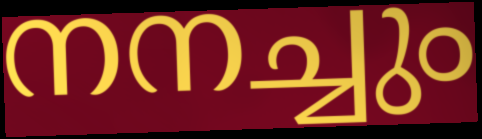
നനച്ചും